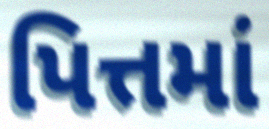
પિત્તમાં